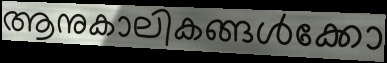
ആനുകാലികങ്ങൾക്കോ